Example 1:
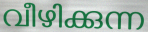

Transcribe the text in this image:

വീഴിക്കുന്ന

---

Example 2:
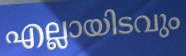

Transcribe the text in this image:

എല്ലായിടവും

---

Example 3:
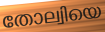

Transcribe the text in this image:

തോല്വിയെ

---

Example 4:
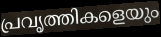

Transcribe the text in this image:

പ്രവൃത്തികളെയും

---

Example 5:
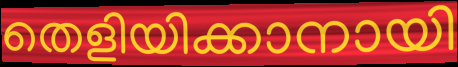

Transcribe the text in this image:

തെളിയിക്കാനായി